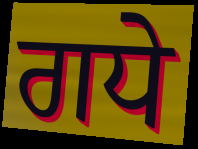
ਗਧੇ